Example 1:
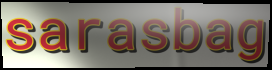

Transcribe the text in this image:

sarasbag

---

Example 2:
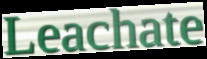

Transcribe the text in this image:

Leachate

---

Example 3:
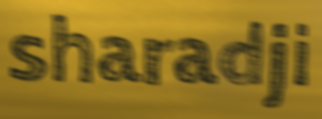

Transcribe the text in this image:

sharadji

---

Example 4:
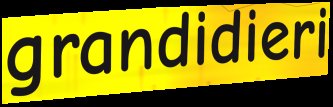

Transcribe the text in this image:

grandidieri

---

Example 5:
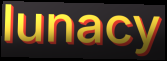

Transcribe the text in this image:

lunacy